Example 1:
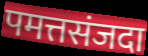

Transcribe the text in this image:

पमत्तसंजदा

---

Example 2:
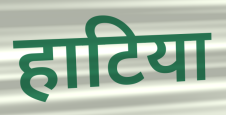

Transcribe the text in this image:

हाटिया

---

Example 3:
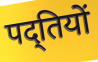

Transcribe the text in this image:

पद्तियों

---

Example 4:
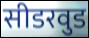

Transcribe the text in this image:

सीडरवुड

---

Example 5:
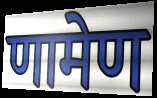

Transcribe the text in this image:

णामेण